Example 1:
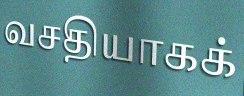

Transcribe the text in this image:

வசதியாகக்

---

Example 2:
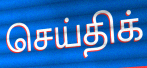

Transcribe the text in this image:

செய்திக்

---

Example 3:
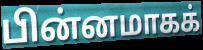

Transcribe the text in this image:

பின்னமாகக்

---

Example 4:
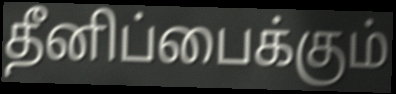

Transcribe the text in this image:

தீனிப்பைக்கும்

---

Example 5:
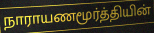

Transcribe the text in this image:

நாராயணமூர்த்தியின்